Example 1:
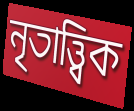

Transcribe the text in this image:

নৃতাত্ত্বিক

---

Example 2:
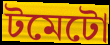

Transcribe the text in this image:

টমেটো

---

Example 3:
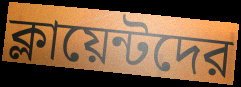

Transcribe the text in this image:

ক্লায়েন্টদের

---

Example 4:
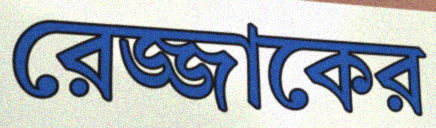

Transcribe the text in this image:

রেজ্জাকের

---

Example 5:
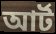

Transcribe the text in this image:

আর্ট